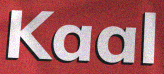
Kaal